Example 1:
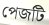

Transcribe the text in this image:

পেজটি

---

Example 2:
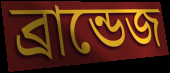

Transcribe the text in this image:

ব্রান্ডেজ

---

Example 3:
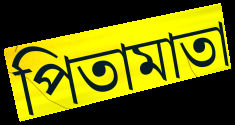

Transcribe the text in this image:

পিতামাতা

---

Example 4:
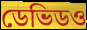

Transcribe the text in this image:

ডেভিডও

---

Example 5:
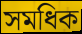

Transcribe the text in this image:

সমধিক